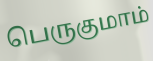
பெருகுமாம்